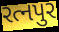
રત્નપુર